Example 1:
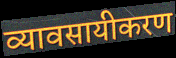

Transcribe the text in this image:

व्यावसायीकरण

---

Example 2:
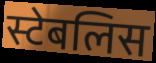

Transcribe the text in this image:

स्टेबलिस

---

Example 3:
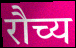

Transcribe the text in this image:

रौच्य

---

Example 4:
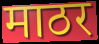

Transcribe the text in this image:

माठर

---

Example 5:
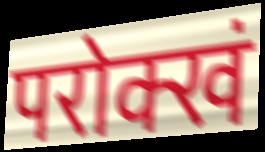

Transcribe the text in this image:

परोक्खं